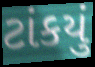
ટાંકયું